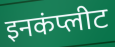
इनकंप्लीट